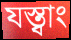
যস্ত্বাং